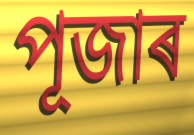
পূজাৰ